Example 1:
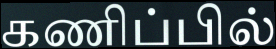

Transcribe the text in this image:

கணிப்பில்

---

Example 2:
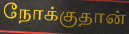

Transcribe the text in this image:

நோக்குதான்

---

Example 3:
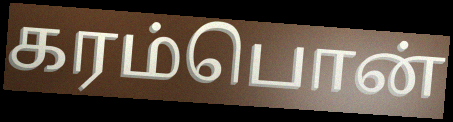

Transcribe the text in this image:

கரம்பொன்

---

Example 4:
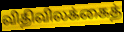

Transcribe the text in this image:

விதிவிலக்கைத்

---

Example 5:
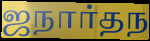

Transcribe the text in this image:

ஜநார்தந